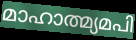
മാഹാത്മ്യമപി